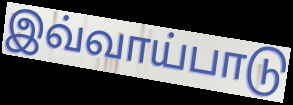
இவ்வாய்பாடு